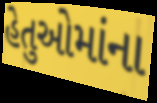
હેતુઓમાંના